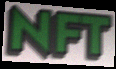
NFT